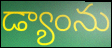
డ్యాంను